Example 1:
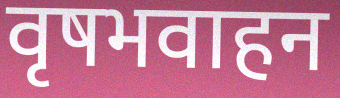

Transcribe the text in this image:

वृषभवाहन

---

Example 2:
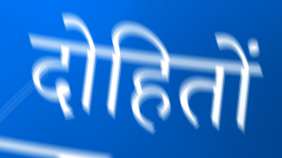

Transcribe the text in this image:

दोहितों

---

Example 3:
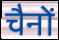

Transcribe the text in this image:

चैनों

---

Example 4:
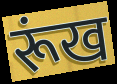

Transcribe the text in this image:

रूंख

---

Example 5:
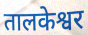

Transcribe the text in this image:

तालकेश्वर